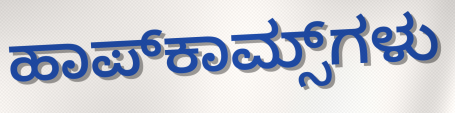
ಹಾಪ್‌ಕಾಮ್ಸ್‌ಗಳು